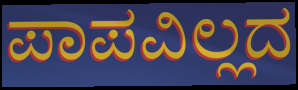
ಪಾಪವಿಲ್ಲದ